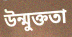
উন্মুক্ততা